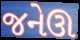
જનેઊ